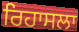
ਰਿਹਾਸਲਾ